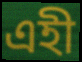
এহী